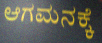
ಆಗಮನಕ್ಕೆ